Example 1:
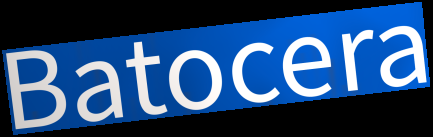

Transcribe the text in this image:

Batocera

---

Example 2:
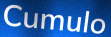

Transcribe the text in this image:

Cumulo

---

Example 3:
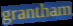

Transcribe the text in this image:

grantham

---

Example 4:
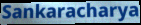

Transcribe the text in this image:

Sankaracharya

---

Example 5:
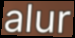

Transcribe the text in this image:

alur